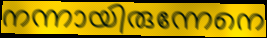
നന്നായിരുന്നേനെ